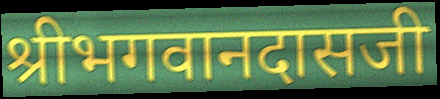
श्रीभगवानदासजी